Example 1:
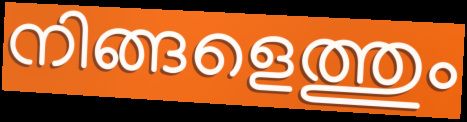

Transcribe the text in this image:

നിങ്ങളെത്തും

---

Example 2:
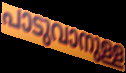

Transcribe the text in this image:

പാടുവാനുള്ള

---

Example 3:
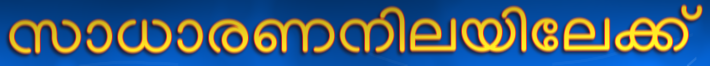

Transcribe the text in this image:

സാധാരണനിലയിലേക്ക്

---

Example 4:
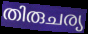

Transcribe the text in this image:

തിരുചര്യ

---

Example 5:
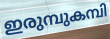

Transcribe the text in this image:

ഇരുമ്പുകമ്പി